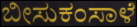
ಬೀಸುಕಂಸಾಳೆ